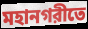
মহানগরীতে